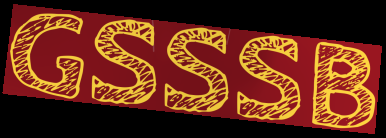
GSSSB